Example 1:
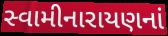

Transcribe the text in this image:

સ્વામીનારાયણનાં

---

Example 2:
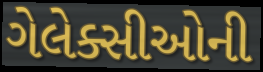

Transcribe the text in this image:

ગેલેક્સીઓની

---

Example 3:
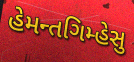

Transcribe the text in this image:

હેમન્તગિમ્હેસુ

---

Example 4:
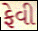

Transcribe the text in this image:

ફેવી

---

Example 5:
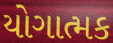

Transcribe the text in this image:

યોગાત્મક